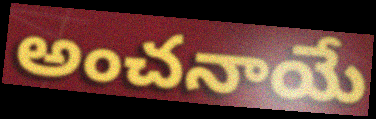
అంచనాయే